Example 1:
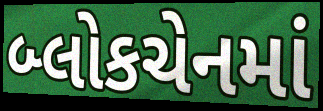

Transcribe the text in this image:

બ્લોકચેનમાં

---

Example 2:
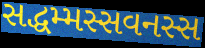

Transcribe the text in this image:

સદ્ધમ્મસ્સવનસ્સ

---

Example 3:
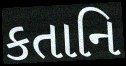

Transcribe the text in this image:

કતાનિ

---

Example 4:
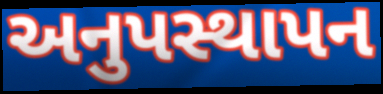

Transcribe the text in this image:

અનુપસ્થાપન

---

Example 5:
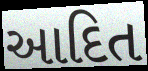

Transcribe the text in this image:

આદિત